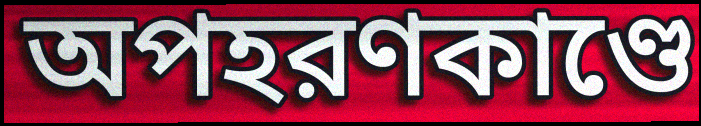
অপহরণকাণ্ডে